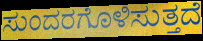
ಸುಂದರಗೊಳಿಸುತ್ತದೆ